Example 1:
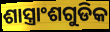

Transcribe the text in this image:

ଶାସ୍ତ୍ରାଂଶଗୁଡିକ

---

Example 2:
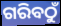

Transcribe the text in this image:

ଗରିବଠୁଁ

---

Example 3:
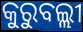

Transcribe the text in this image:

କୁରୁବଲ୍ଲୀ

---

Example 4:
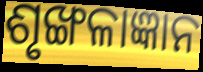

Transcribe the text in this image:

ଶୃଙ୍ଖଳାଜ୍ଞାନ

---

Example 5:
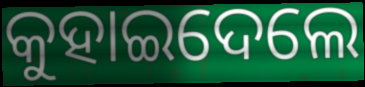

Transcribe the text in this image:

କୁହାଇଦେଲେ